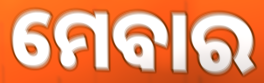
ମେବାର